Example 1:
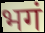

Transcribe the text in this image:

भगं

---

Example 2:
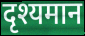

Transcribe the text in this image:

दृश्यमान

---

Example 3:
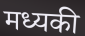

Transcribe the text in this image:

मध्यकी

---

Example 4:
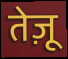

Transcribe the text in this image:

तेज़ू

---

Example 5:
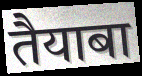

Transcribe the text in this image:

तैयाबा